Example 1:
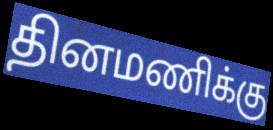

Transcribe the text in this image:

தினமணிக்கு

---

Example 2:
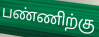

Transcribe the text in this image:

பண்ணிற்கு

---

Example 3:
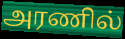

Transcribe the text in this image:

அரணில்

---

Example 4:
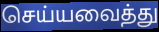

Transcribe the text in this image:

செய்யவைத்து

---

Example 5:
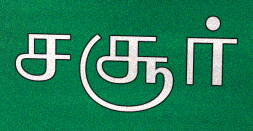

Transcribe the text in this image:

சசூர்